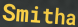
Smitha